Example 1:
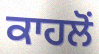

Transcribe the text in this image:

ਕਾਹਲੋਂ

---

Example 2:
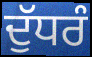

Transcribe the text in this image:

ਦੁੱਧਰੰ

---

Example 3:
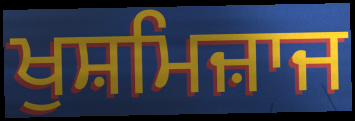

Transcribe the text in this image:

ਖੁਸ਼ਮਿਜ਼ਾਜ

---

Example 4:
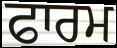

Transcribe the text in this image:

ਫਾਰਮ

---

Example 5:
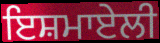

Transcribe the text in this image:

ਇਸ਼ਮਾਏਲੀ